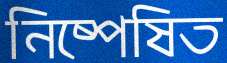
নিষ্পেষিত